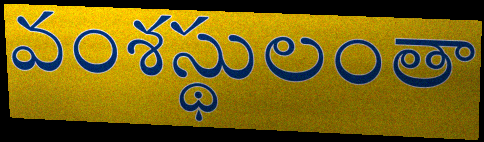
వంశస్థులంతా